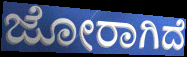
ಜೋರಾಗಿದೆ